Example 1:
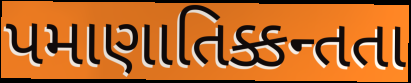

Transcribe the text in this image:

પમાણાતિક્કન્તતા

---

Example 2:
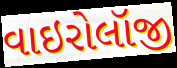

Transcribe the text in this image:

વાઇરોલૉજી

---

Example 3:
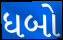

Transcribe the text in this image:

ધબો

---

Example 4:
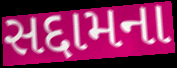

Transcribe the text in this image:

સદ્દામના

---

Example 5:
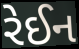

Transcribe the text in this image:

રેઈન